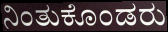
ನಿಂತುಕೊಂಡರು